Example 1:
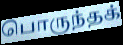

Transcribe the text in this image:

பொருந்தக்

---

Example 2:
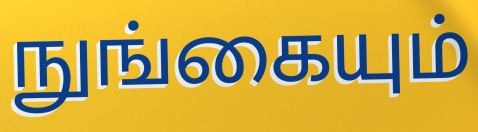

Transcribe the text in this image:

நுங்கையும்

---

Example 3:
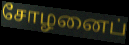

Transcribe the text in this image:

சோழனைப்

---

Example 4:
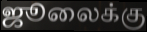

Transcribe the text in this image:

ஜூலைக்கு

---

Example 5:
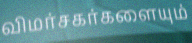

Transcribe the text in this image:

விமர்சகர்களையும்